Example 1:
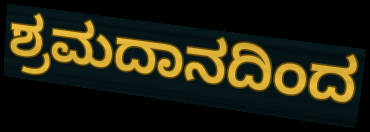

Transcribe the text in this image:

ಶ್ರಮದಾನದಿಂದ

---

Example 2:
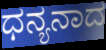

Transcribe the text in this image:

ಧನ್ಯನಾದ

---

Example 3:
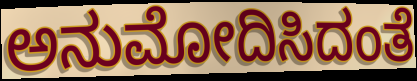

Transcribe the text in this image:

ಅನುಮೋದಿಸಿದಂತೆ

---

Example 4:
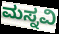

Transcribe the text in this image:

ಮಸ್ನವಿ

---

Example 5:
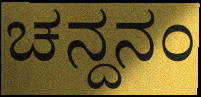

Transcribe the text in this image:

ಚನ್ದನಂ